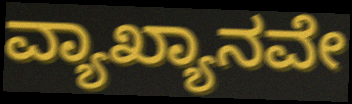
ವ್ಯಾಖ್ಯಾನವೇ